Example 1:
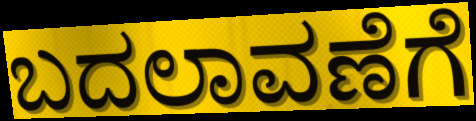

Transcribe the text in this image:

ಬದಲಾವಣೆಗೆ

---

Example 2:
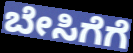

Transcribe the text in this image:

ಬೇಸಿಗೆಗೆ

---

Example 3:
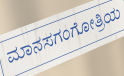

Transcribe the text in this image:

ಮಾನಸಗಂಗೋತ್ರಿಯ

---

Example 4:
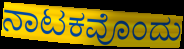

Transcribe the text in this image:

ನಾಟಕವೊಂದು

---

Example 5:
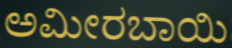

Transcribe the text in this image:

ಅಮೀರಬಾಯಿ